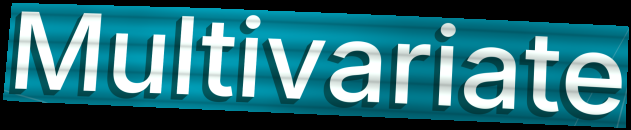
Multivariate